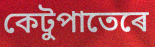
কেটুপাতেৰে